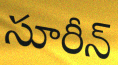
సూరీన్